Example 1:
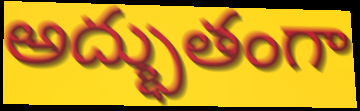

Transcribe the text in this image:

అద్భుతంగా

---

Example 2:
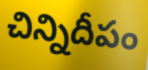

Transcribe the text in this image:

చిన్నిదీపం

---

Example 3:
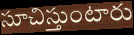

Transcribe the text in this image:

సూచిస్తుంటారు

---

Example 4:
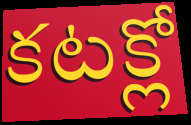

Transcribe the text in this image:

కటక్లో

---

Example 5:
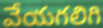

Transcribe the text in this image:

వేయగలిగి